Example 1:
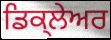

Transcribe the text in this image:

ਡਿਕ੍ਲੇਅਰ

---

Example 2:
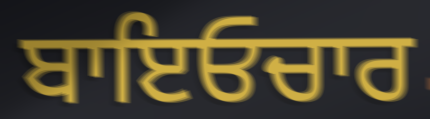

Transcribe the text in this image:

ਬਾਇਓਚਾਰ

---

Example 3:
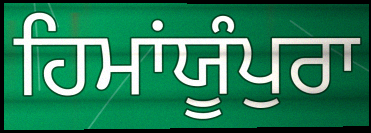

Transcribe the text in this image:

ਹਿਮਾਂਯੂੰਪੁਰਾ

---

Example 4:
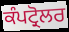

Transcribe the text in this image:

ਕੰਪਟ੍ਰੋਲਰ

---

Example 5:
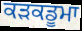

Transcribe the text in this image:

ਕੜਕਡੂਮਾ